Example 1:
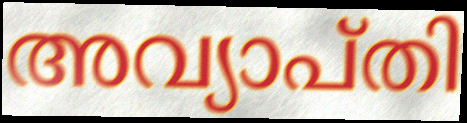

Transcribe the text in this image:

അവ്യാപ്തി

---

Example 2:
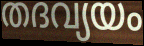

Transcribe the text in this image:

തദവ്യയം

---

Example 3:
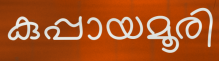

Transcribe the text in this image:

കുപ്പായമൂരി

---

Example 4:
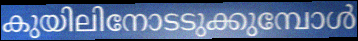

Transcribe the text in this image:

കുയിലിനോടടുക്കുമ്പോൾ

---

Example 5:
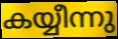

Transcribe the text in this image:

കയ്യീന്നു